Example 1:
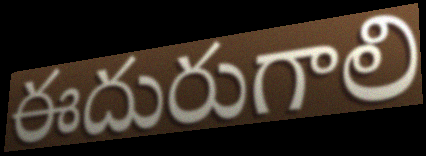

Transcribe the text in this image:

ఈదురుగాలి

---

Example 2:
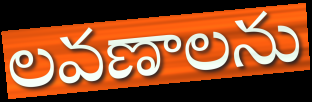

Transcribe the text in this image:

లవణాలను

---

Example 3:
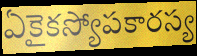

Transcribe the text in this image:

ఏకైకస్యోపకారస్య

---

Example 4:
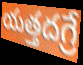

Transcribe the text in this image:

యత్తదగ్రే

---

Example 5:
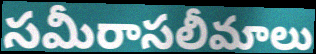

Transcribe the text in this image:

సమీరాసలీమాలు